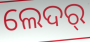
ଲେଦର୍